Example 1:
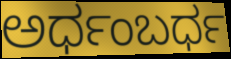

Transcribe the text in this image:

ಅರ್ಧಂಬರ್ಧ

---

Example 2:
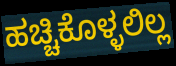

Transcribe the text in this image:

ಹಚ್ಚಿಕೊಳ್ಳಲಿಲ್ಲ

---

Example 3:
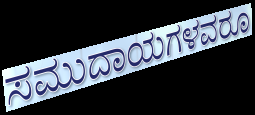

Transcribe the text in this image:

ಸಮುದಾಯಗಳವರೂ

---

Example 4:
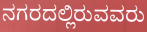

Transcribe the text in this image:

ನಗರದಲ್ಲಿರುವವರು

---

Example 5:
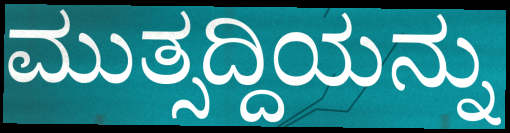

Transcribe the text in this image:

ಮುತ್ಸದ್ದಿಯನ್ನು